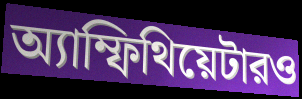
অ্যাম্ফিথিয়েটারও